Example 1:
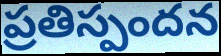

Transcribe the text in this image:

ప్రతిస్పందన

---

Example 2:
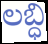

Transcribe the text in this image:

లబ్ధి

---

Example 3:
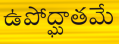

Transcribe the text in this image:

ఉపోద్ఘాతమే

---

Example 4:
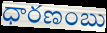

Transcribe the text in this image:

ధారణంబు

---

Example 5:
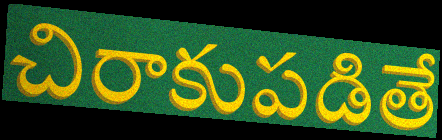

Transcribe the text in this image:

చిరాకుపడితే